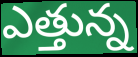
ఎత్తున్న